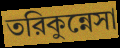
তরিকুন্নেসা